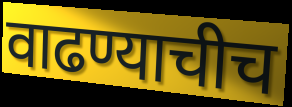
वाढण्याचीच